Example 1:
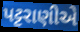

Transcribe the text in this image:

પટ્ટરાણીએ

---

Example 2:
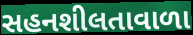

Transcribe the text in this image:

સહનશીલતાવાળા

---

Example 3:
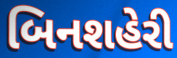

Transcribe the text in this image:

બિનશહેરી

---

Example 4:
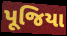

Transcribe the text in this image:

પૂજિયા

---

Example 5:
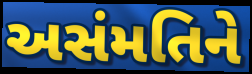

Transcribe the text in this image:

અસંમતિને